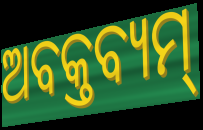
ଅବକ୍ତବ୍ୟମ୍